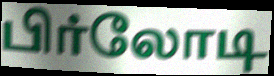
பிர்லோடி